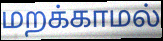
மறக்காமல்